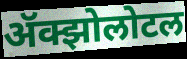
ॲक्झोलोटल